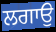
ਲਗਾਉੁ